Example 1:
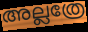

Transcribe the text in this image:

അല്ലത്രേ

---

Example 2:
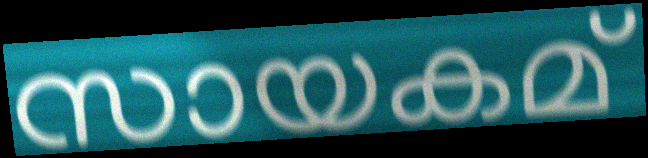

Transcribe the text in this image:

സായകമ്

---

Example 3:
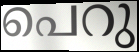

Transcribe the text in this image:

പെറു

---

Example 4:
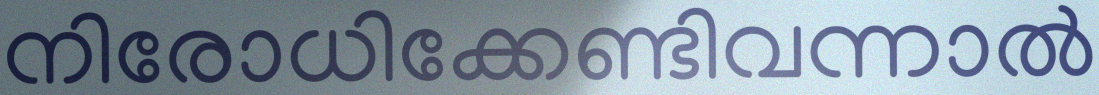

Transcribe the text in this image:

നിരോധിക്കേണ്ടിവന്നാൽ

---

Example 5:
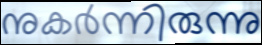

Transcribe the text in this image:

നുകർന്നിരുന്നു